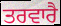
ਤਰਵਾਰੈ